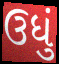
ઉધું